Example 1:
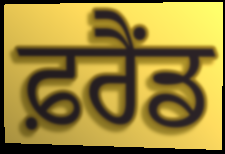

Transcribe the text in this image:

ਫ਼ਰੈਂਡ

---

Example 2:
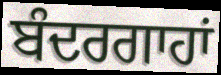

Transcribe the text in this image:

ਬੰਦਰਗਾਹਾਂ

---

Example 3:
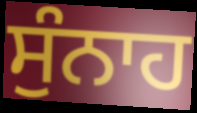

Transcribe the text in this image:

ਸੁੰਨਾਹ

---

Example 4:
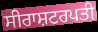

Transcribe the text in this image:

ਸੀਰਾਸ਼ਟਰਪਤੀ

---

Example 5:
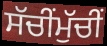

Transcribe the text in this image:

ਸੱਚੀਂਮੁੱਚੀਂ